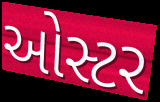
ઓસ્ટર